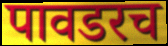
पावडरच